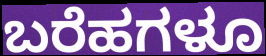
ಬರೆಹಗಳೂ